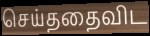
செய்ததைவிட